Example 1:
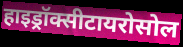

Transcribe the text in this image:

हाइड्रॉक्सीटायरोसोल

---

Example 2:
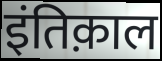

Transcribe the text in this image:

इंतिक़ाल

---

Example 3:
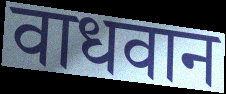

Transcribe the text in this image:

वाधवान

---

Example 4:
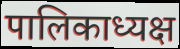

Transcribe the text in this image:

पालिकाध्यक्ष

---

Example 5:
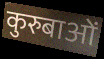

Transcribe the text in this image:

कुरुबाओं